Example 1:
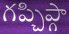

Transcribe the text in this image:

గప్చిప్గా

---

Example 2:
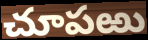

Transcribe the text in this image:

చూపఱు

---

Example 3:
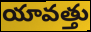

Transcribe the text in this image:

యావత్తు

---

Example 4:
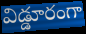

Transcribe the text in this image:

విడ్డూరంగా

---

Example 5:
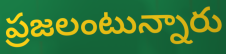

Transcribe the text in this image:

ప్రజలంటున్నారు